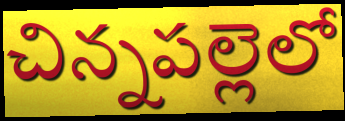
చిన్నపల్లెలో